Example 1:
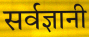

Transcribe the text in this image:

सर्वज्ञानी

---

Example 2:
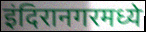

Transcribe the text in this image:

इंदिरानगरमध्ये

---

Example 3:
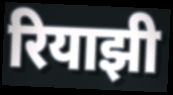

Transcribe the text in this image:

रियाझी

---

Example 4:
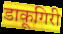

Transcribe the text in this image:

डाकूगिरी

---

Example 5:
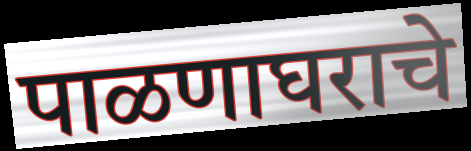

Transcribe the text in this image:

पाळणाघराचे